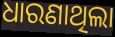
ଧାରଣାଥିଲା